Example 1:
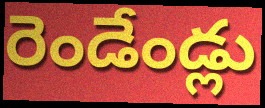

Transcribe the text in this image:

రెండేండ్లు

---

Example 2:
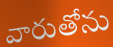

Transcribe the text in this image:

వారుతోను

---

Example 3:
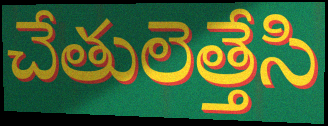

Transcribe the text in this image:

చేతులెత్తేసి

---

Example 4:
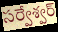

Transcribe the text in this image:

సర్వేశ్వర్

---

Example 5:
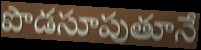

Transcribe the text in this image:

పొడసూపుతూనే